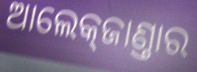
ଆଲେକ୍‌ଜାଣ୍ତାର